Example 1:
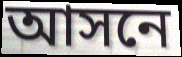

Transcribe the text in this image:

আসনে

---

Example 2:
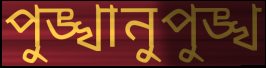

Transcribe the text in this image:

পুঙ্খানুপুঙ্খ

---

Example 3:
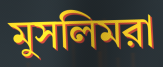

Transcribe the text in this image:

মুসলিমরা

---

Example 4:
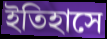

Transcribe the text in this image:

ইতিহাসে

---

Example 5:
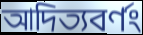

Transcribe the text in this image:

আদিত্যবর্ণং